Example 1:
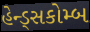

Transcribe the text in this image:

હેન્ડ્સકોમ્બ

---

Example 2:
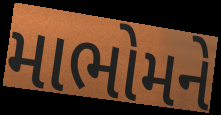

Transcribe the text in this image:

માભોમને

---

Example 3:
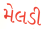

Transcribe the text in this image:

મેલડી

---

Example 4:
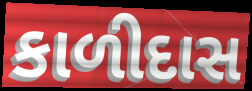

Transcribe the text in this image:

કાળીદાસ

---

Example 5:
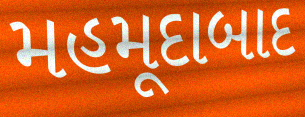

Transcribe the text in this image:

મહમૂદાબાદ